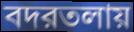
বদরতলায়